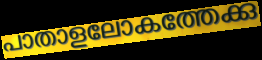
പാതാളലോകത്തേക്കു